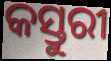
କସ୍ତୁରୀ